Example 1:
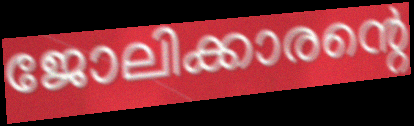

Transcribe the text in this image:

ജോലിക്കാരന്റെ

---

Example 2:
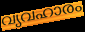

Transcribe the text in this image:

വ്യവഹാരം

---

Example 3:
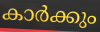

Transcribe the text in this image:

കാർക്കും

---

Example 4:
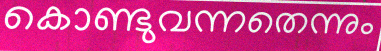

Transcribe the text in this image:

കൊണ്ടുവന്നതെന്നും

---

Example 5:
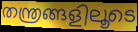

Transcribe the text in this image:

തന്ത്രങ്ങളിലൂടെ